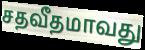
சதவீதமாவது